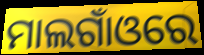
ମାଲଗାଁଓରେ